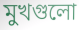
মুখগুলো